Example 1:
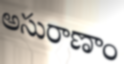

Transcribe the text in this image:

అసురాణాం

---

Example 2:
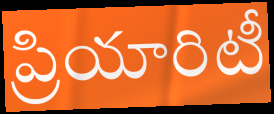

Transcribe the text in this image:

ప్రియారిటీ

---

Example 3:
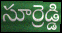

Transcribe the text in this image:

సూర్రెడ్డి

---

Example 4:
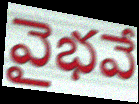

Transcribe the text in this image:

వైభవే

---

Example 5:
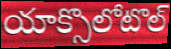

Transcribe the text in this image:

యాక్సొలోటొల్